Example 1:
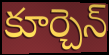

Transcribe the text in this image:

కూర్చెన్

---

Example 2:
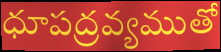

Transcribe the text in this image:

ధూపద్రవ్యముతో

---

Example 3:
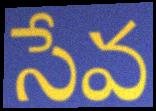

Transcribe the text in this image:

సేవ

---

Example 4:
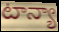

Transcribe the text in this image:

టాన్యా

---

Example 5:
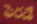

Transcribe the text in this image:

ఫెరడే